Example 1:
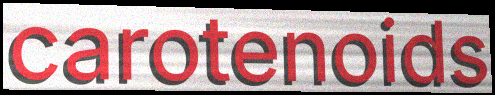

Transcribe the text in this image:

carotenoids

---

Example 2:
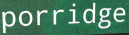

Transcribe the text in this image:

porridge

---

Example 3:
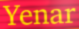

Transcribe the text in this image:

Yenar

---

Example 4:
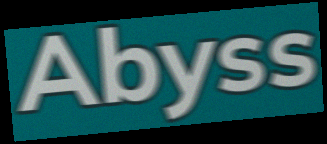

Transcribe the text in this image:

Abyss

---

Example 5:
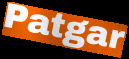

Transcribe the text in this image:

Patgar